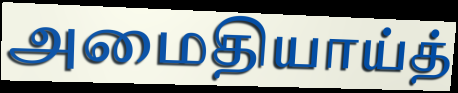
அமைதியாய்த்